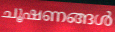
ചൂഷണങ്ങൾ